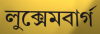
লুক্সেমবার্গ